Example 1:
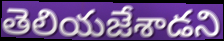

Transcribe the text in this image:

తెలియజేశాడని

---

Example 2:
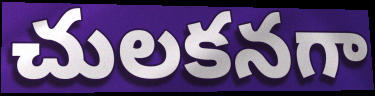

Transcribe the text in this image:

చులకనగా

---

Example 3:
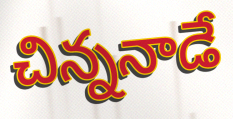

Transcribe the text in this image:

చిన్ననాడే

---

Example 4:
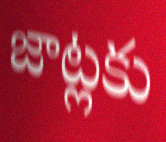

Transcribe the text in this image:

జాట్లకు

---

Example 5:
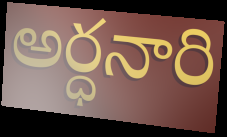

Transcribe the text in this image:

అర్ధనారి